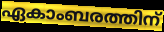
ഏകാംബരത്തിന്